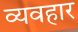
व्‍यवहार